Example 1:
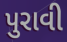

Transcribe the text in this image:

પુરાવી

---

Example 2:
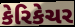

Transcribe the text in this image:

કેરિકેચર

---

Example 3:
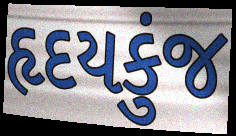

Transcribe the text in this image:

હૃદયકુંજ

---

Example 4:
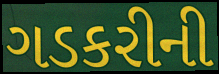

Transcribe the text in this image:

ગડકરીની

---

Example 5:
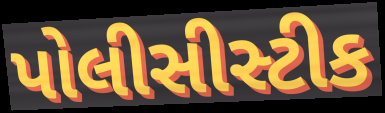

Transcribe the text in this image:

પોલીસીસ્ટીક